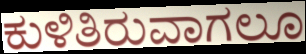
ಕುಳಿತಿರುವಾಗಲೂ